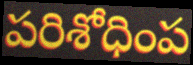
పరిశోధింప